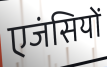
एजंसियों